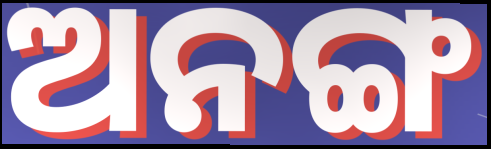
ଅନଙ୍ଗ